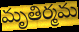
మృతిర్మమ